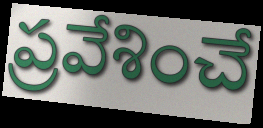
ప్రవేశించే